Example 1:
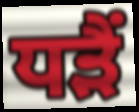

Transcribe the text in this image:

ਧੜੈਂ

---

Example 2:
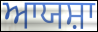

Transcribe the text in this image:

ਆਯਸ਼ਾ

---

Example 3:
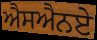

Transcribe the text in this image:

ਐਸਐਨਏ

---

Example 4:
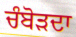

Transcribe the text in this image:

ਚੰਬੋੜਦਾ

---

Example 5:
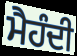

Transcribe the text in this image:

ਮੈਹੰਦੀ